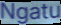
Ngatu